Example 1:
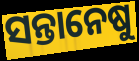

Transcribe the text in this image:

ସନ୍ତାନେଷୁ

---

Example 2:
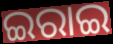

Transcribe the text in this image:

ଇରାଇ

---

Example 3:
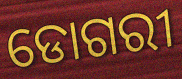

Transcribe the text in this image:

ଡୋଗରୀ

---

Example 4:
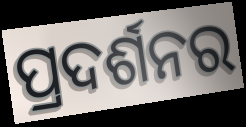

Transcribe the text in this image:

ପ୍ରଦର୍ଶନର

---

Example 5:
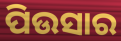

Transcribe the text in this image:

ପିଉସାର